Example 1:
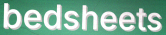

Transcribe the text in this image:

bedsheets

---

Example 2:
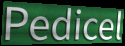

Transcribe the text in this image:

Pedicel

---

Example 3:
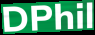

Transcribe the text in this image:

DPhil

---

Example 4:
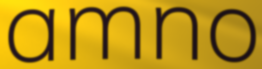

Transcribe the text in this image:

amno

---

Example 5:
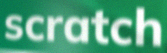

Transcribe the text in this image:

scratch